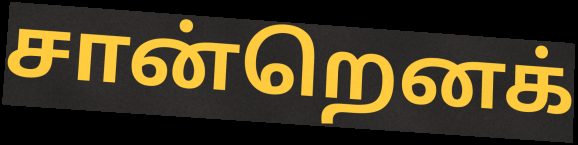
சான்றெனக்